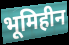
भूमिहीन